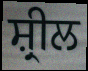
ਸ਼੍ਰੀਲ